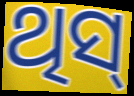
ଥିସ୍